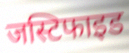
जस्टिफाइड